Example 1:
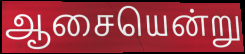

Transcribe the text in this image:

ஆசையென்று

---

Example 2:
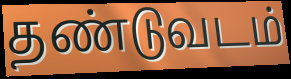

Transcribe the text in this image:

தண்டுவடம்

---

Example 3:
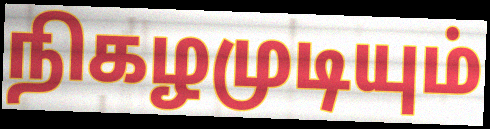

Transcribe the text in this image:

நிகழமுடியும்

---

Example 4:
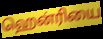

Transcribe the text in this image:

ஹென்ரியை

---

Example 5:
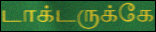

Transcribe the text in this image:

டாக்டருக்கே